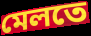
মেলতে